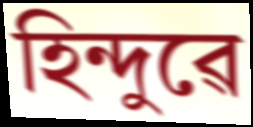
হিন্দুৱে